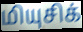
மியுசிக்